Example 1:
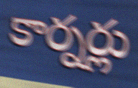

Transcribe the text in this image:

కార్నర్లు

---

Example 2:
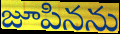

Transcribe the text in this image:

జూపినను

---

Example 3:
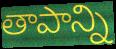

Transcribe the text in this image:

తాపాన్ని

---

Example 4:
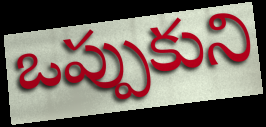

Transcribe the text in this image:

ఒప్పుకుని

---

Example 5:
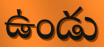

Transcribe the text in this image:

ఉండు